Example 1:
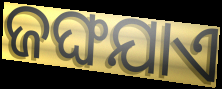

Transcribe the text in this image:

ଜଙ୍ଘଯାଏ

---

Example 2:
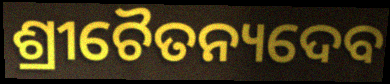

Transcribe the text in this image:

ଶ୍ରୀଚୈତନ୍ୟଦେବ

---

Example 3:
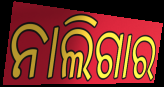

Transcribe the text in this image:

ନାଲିଗାର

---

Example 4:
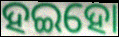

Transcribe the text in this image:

ହଇହୋ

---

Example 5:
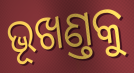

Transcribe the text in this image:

ଭୂଖଣ୍ତକୁ